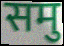
समु